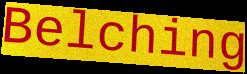
Belching